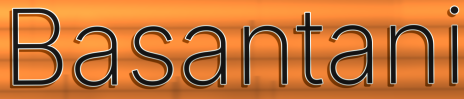
Basantani